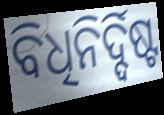
ବିଧିନିର୍ଦ୍ଦିଷ୍ଟ